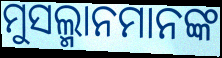
ମୁସଲ୍ମାନମାନଙ୍କ